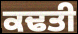
ਕਢਤੀ